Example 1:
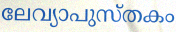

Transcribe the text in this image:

ലേവ്യാപുസ്തകം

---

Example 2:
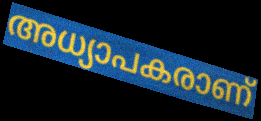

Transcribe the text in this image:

അധ്യാപകരാണ്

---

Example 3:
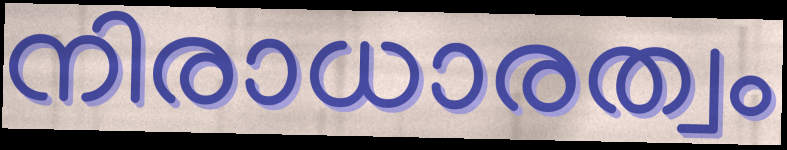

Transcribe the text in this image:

നിരാധാരത്വം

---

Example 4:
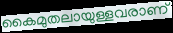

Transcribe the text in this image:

കൈമുതലായുള്ളവരാണ്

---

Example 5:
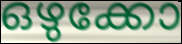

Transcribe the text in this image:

ഒഴുക്കോ